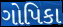
ગોપિકા